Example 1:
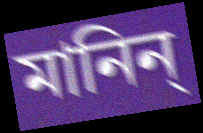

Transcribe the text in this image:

মানিন্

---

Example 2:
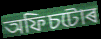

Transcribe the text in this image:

অফিচটোৰ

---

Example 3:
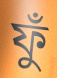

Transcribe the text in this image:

ফুঁ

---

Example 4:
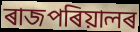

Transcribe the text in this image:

ৰাজপৰিয়ালৰ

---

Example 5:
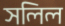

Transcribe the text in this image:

সলিল